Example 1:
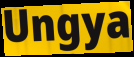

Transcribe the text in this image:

Ungya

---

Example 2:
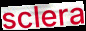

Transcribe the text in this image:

sclera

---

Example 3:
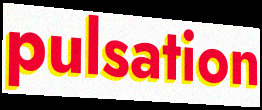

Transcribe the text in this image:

pulsation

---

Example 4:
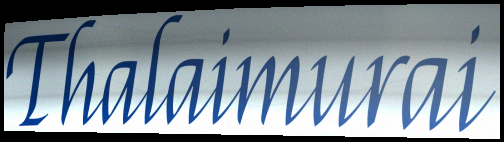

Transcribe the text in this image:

Thalaimurai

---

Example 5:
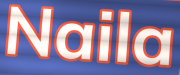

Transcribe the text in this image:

Naila